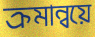
ক্ৰমান্বয়ে